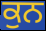
ਕੁਨ